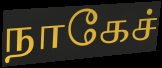
நாகேச்